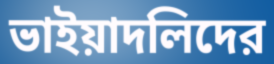
ভাইয়াদলিদের